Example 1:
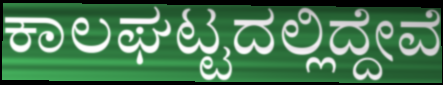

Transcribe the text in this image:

ಕಾಲಘಟ್ಟದಲ್ಲಿದ್ದೇವೆ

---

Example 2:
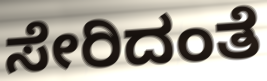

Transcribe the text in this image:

ಸೇರಿದಂತೆ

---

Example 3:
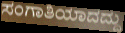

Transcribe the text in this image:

ಸಂಗಾತಿಯಾದದ್ದು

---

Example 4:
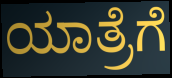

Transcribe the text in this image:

ಯಾತ್ರೆಗೆ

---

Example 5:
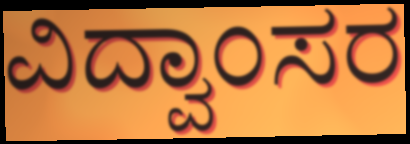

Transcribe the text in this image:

ವಿದ್ವಾಂಸರ